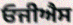
ਓਜੀਐਸ